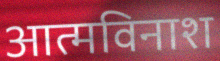
आत्मविनाश